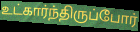
உட்கார்ந்திருப்போர்